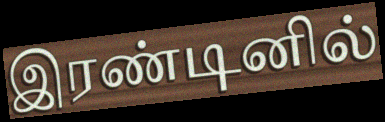
இரண்டினில்